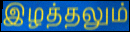
இழத்தலும்